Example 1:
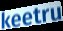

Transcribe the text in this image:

keetru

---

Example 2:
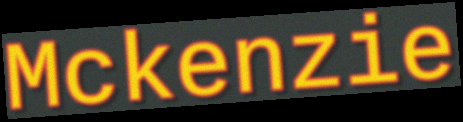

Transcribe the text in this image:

Mckenzie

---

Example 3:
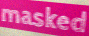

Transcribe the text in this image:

masked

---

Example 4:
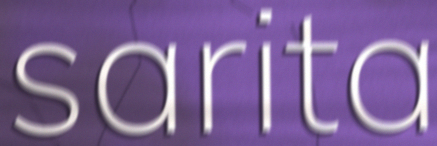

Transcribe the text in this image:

sarita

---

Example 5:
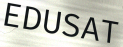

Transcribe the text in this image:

EDUSAT